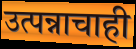
उत्पन्नाचाही